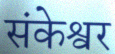
संकेश्वर